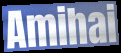
Amihai